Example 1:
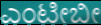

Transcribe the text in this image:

ಎಂಟೀಬೀ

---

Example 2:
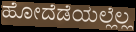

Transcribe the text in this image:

ಹೋದೆಡೆಯಲ್ಲೆಲ್ಲ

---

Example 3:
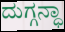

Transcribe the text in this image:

ದುಗ್ಗನ್ಧಾ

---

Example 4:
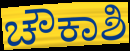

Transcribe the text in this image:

ಚೌಕಾಶಿ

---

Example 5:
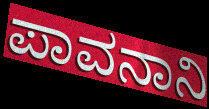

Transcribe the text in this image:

ಪಾವನಾನಿ